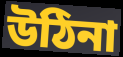
উঠিনা